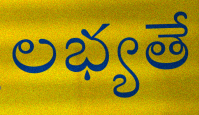
లభ్యతే